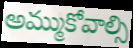
అమ్ముకోవాల్సి